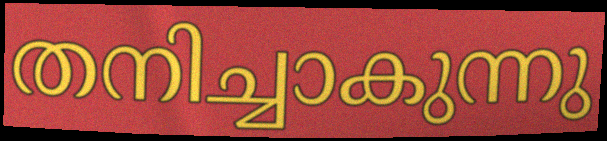
തനിച്ചാകുന്നു